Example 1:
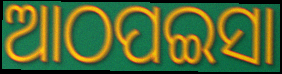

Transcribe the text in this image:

ଆଠପଇସା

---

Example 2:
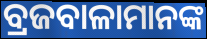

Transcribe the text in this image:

ବ୍ରଜବାଳାମାନଙ୍କ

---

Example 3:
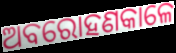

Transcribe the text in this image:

ଅବରୋହଣକାଳେ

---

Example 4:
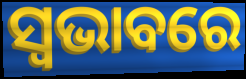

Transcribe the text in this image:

ସ୍ବଭାବରେ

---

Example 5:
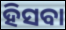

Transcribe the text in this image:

ହିସବା